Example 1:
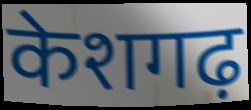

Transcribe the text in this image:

केशगढ़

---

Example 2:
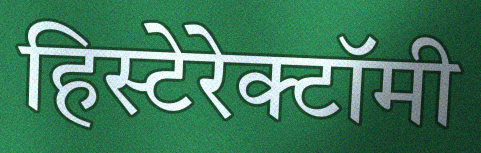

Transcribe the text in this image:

हिस्टेरेक्टॉमी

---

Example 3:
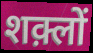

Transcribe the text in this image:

शक़्लों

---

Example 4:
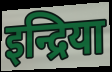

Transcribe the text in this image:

इन्द्रिया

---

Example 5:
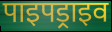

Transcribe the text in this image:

पाइपड्राइव